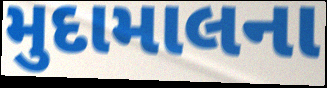
મુદામાલના